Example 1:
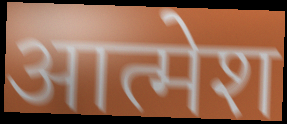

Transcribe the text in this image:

आत्मेश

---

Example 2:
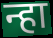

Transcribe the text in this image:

न्हा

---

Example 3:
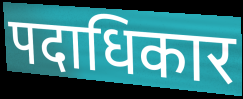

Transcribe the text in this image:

पदाधिकार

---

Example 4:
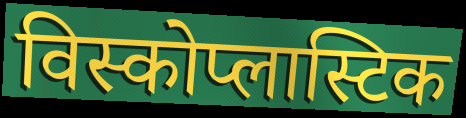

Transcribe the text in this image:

विस्कोप्लास्टिक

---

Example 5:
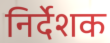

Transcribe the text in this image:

निर्देशक